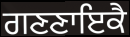
ਗਣਣਾਇਕੈ